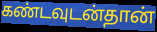
கண்டவுடன்தான்